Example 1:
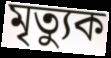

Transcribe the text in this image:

মৃত্যুক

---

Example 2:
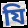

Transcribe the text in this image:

যি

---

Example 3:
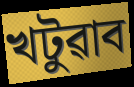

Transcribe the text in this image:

খটুৱাব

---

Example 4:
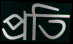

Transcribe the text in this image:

প্ৰতি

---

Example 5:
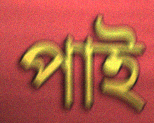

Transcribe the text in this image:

পাই